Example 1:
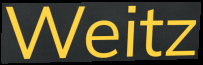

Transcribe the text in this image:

Weitz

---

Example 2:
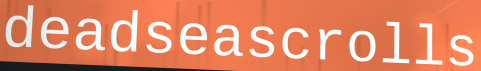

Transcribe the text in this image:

deadseascrolls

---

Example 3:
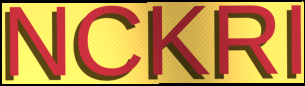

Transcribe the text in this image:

NCKRI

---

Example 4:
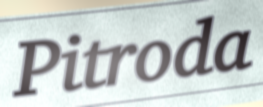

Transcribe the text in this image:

Pitroda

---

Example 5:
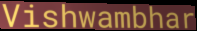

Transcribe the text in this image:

Vishwambhar